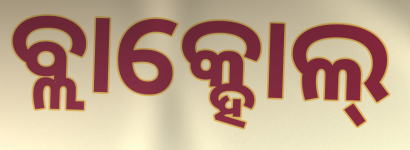
ବ୍ଲାକ୍ହୋଲ୍